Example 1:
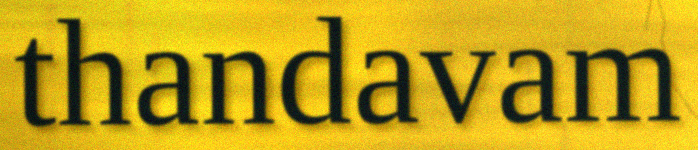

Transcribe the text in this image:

thandavam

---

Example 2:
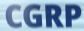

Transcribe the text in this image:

CGRP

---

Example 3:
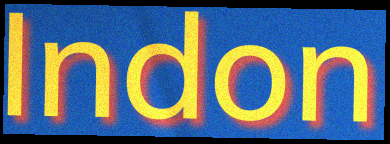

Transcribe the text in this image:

Indon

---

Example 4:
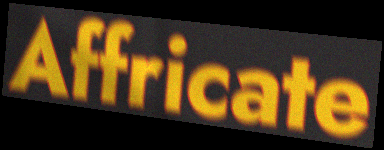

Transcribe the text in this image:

Affricate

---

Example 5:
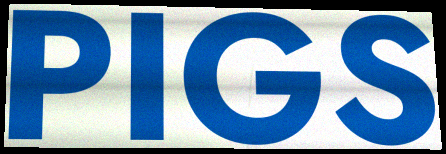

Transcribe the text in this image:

PIGS